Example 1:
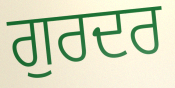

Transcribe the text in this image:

ਗੁਰਦਰ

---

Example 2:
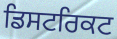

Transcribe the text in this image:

ਡਿਸਟਰਿਕਟ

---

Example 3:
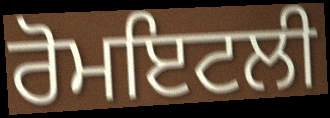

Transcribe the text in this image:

ਰੋਮਇਟਲੀ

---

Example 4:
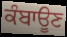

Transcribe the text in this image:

ਕੰਬਾਊਣ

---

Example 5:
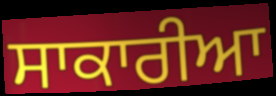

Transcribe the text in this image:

ਸਾਕਾਰੀਆ